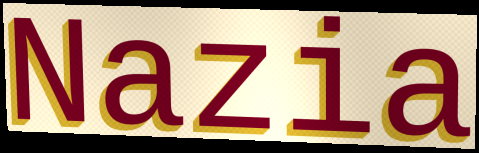
Nazia